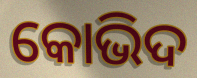
କୋଭିଦ